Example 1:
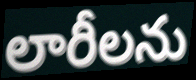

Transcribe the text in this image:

లారీలను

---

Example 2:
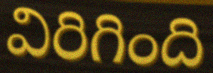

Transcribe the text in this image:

విరిగింది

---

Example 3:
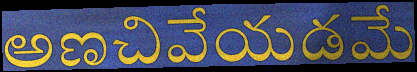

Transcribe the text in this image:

అణచివేయడమే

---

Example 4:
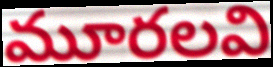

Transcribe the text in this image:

మూరలవి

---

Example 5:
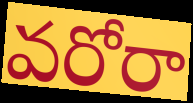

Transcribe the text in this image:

వరోరా